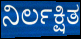
ನಿರ್ಲಕ್ಷಿತ